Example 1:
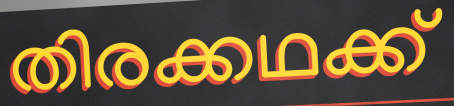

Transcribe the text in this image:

തിരക്കഥക്ക്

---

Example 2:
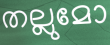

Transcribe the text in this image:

തല്ലുമോ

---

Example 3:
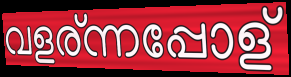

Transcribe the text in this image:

വളര്ന്നപ്പോള്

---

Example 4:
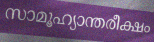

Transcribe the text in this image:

സാമൂഹ്യാന്തരീക്ഷം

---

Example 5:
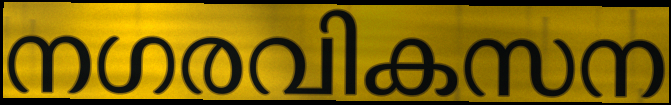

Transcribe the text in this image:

നഗരവികസന